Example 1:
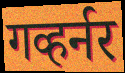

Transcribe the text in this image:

गव्हर्नर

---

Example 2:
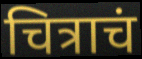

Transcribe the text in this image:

चित्राचं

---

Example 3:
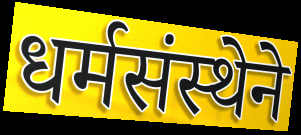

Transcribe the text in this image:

धर्मसंस्थेने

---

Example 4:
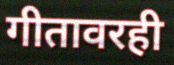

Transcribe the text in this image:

गीतावरही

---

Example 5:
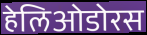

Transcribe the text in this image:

हेलिओडोरस